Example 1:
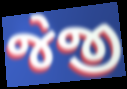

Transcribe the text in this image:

જેજી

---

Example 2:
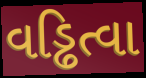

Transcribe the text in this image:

વડ્ઢિત્વા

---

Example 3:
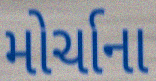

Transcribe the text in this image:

મોર્ચાના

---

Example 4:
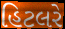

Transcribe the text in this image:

હિટલરે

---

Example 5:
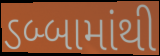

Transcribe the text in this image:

ડબ્બામાંથી